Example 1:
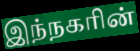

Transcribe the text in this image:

இந்நகரின்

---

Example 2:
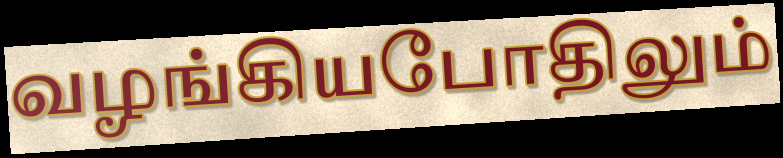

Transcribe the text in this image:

வழங்கியபோதிலும்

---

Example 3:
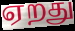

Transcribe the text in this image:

ஏறது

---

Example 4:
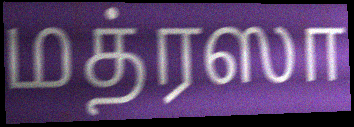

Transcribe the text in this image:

மத்ரஸா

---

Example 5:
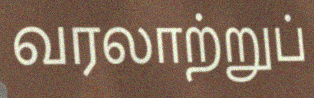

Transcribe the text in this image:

வரலாற்றுப்